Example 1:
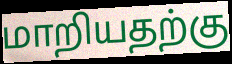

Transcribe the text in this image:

மாறியதற்கு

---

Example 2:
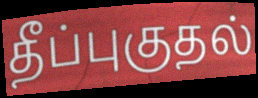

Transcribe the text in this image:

தீப்புகுதல்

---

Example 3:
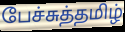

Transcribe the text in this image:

பேச்சுத்தமிழ்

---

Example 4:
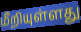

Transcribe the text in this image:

மீறியுள்ளது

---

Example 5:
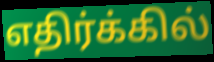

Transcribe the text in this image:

எதிர்க்கில்